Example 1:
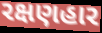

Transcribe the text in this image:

રક્ષણહાર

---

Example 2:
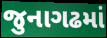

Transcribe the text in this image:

જુનાગઢમાં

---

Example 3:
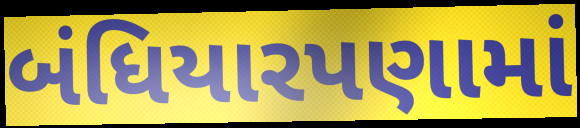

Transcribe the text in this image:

બંધિયારપણામાં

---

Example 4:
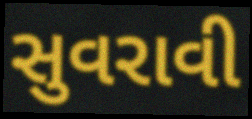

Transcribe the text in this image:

સુવરાવી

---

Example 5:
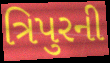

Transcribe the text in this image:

ત્રિપુરની